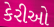
કેરીઓ